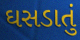
ઘસડાતું